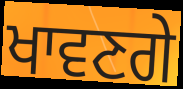
ਖਾਵਣਗੇ